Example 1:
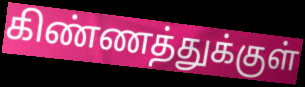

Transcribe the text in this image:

கிண்ணத்துக்குள்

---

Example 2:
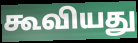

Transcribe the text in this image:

கூவியது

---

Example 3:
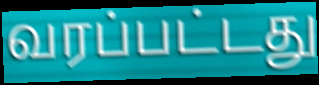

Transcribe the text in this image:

வரப்பட்டது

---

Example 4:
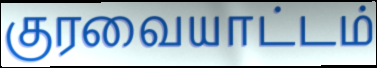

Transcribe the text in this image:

குரவையாட்டம்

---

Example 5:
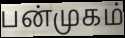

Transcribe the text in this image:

பன்முகம்